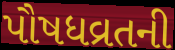
પૌષધવ્રતની